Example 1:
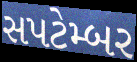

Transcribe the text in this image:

સપટેમ્બર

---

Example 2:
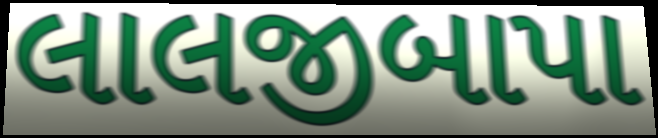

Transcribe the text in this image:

લાલજીબાપા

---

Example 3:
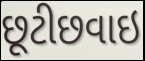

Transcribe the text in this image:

છૂટીછવાઇ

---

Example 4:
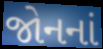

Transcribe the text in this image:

જોનનાં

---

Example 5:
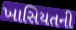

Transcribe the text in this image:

ખાસિયતની